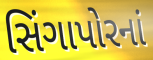
સિંગાપોરનાં